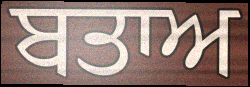
ਬਤਾਅ